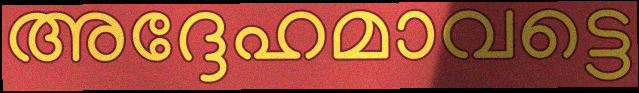
അദ്ദേഹമാവട്ടെ